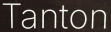
Tanton